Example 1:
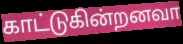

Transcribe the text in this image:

காட்டுகின்றனவா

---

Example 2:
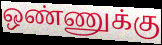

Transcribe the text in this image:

ஒண்ணுக்கு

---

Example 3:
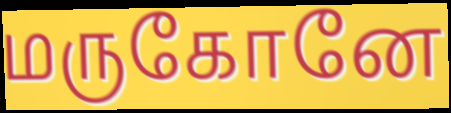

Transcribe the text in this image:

மருகோனே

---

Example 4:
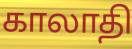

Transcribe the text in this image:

காலாதி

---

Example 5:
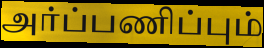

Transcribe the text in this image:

அர்ப்பணிப்பும்